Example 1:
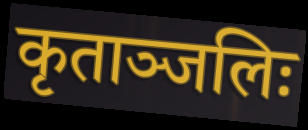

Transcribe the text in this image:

कृताञ्जलिः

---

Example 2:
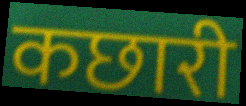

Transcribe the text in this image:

कछारी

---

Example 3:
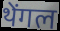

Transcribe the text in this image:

थेंगल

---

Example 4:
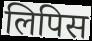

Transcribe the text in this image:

लिपिस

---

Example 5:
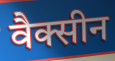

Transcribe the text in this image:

वैक्‍सीन